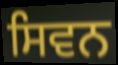
ਸਿਵਨ